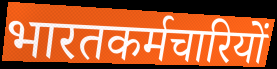
भारतकर्मचारियों